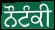
ਨੌਟੰਕੀ